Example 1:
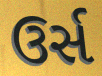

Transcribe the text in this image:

ઉર્સ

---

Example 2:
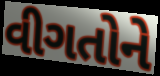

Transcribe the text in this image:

વીગતોને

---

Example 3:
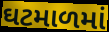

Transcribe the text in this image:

ઘટમાળમાં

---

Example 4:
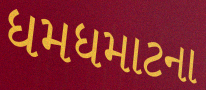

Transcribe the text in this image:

ધમધમાટના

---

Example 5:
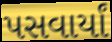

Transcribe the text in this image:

પસવાર્યાં